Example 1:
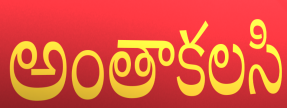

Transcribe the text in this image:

అంతాకలసి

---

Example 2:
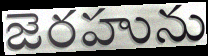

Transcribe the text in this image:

జెరహును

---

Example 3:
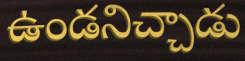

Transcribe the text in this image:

ఉండనిచ్చాడు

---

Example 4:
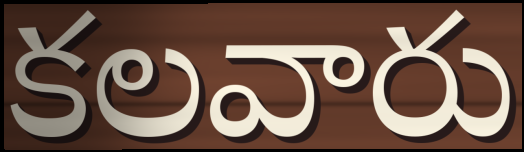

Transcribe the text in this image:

కలవారు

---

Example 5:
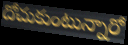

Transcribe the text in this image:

దోచుకుంటున్నారో